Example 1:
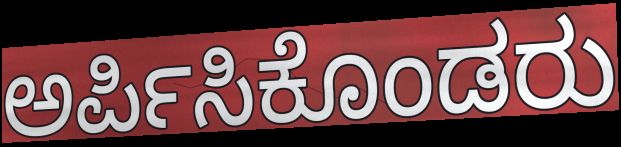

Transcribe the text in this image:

ಅರ್ಪಿಸಿಕೊಂಡರು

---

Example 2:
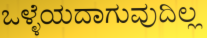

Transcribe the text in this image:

ಒಳ್ಳೆಯದಾಗುವುದಿಲ್ಲ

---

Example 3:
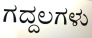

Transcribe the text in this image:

ಗದ್ದಲಗಳು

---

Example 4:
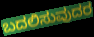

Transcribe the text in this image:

ಬದಲಿಸುವುದರ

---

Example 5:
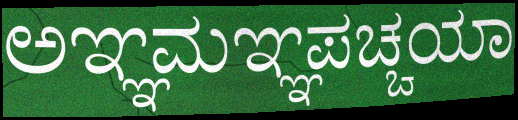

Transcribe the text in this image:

ಅಞ್ಞಮಞ್ಞಪಚ್ಚಯಾ